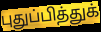
புதுப்பித்துக்